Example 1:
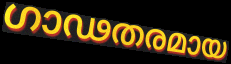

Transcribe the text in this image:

ഗാഢതരമായ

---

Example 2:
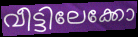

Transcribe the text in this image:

വീട്ടിലേക്കോ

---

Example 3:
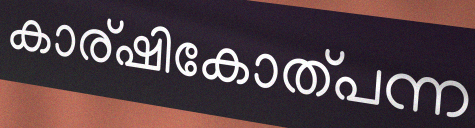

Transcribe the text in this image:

കാര്ഷികോത്പന്ന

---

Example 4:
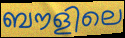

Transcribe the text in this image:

ബൗളിലെ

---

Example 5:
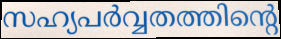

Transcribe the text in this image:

സഹ്യപർവ്വതത്തിന്റെ